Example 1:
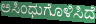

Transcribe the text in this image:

ಅಸಿಂಧುಗೊಳಿಸಿದೆ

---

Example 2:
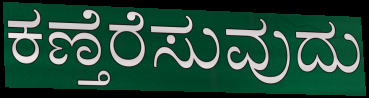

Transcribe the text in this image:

ಕಣ್ತೆರೆಸುವುದು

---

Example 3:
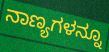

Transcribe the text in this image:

ನಾಣ್ಯಗಳನ್ನೂ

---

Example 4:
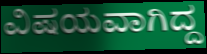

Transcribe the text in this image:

ವಿಷಯವಾಗಿದ್ದ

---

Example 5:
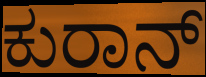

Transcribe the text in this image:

ಕುರಾನ್